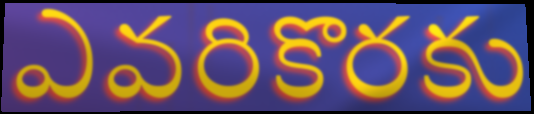
ఎవరికొరకు